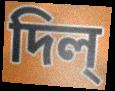
দিল্